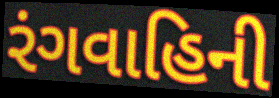
રંગવાહિની